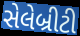
સેલેબ્રીટી